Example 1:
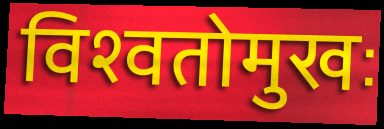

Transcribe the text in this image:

विश्वतोमुखः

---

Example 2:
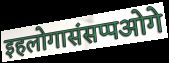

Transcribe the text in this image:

इहलोगासंसप्पओगे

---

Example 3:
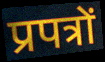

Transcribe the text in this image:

प्रपत्रों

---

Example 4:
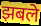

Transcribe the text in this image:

झबले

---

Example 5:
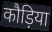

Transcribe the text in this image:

कौड़िया